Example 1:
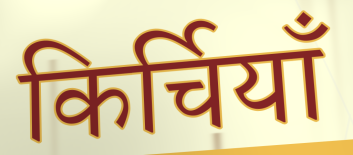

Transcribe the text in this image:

किर्चियाँ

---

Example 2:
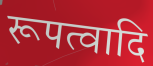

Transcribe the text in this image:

रूपत्वादि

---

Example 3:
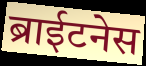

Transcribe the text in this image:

ब्राईटनेस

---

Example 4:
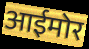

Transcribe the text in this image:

आईमोर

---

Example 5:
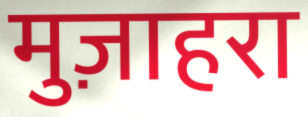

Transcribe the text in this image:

मुज़ाहरा